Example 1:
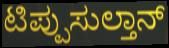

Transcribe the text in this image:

ಟಿಪ್ಪುಸುಲ್ತಾನ್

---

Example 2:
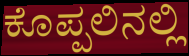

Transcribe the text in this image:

ಕೊಪ್ಪಲಿನಲ್ಲಿ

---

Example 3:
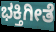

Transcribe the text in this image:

ಭಕ್ತಿಗೀತೆ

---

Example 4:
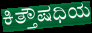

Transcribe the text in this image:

ಕಿತ್ತೌಷಧಿಯ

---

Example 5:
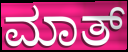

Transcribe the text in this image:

ಮಾತ್